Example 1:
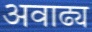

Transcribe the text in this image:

अवाढ्य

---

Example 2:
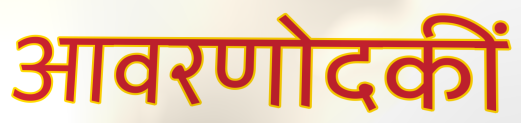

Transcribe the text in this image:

आवरणोदकीं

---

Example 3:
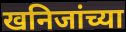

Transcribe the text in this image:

खनिजांच्या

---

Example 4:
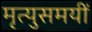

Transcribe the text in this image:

मृत्युसमयीं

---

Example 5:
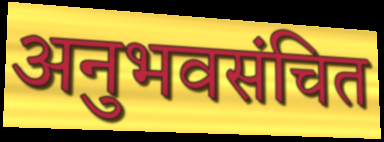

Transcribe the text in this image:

अनुभवसंचित